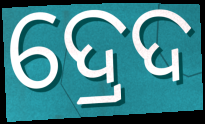
ଦ୍ରେଦ